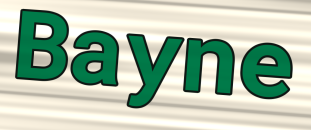
Bayne